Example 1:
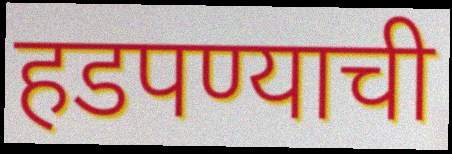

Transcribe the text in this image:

हडपण्याची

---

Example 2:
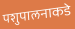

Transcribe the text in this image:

पशुपालनाकडे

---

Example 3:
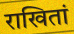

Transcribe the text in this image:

राखितां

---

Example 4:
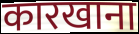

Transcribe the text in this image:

कारखाना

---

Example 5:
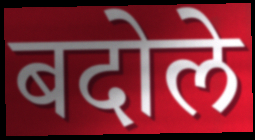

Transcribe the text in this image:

बदोले